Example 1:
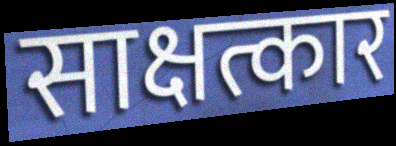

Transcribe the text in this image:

साक्षत्कार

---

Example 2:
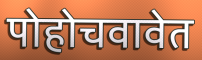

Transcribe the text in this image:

पोहोचवावेत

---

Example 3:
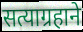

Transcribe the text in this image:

सत्याग्रहाने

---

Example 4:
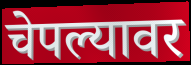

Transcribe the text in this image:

चेपल्यावर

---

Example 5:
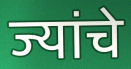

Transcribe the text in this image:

ज्यांचे